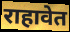
राहावेत